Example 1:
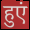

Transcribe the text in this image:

हुएं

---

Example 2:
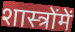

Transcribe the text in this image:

शास्त्रोंमें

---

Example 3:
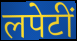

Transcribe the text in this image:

लपेटीं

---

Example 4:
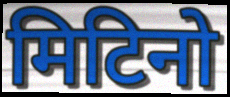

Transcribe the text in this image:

मिटिनो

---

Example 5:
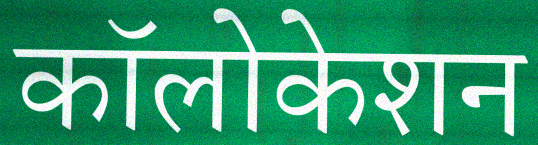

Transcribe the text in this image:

कॉलोकेशन